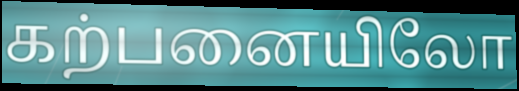
கற்பனையிலோ